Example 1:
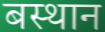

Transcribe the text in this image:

बस्थान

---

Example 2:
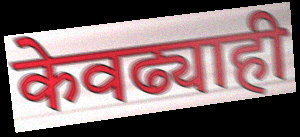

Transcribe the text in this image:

केवढ्याही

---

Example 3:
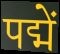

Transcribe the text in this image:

पद्में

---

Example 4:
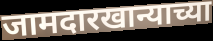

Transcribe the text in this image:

जामदारखान्याच्या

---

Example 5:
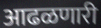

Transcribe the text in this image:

आढळणारी